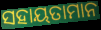
ସହାୟତାମାନ